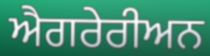
ਐਗਰੇਰੀਅਨ